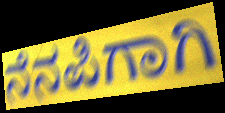
ನೆನಪಿಗಾಗಿ